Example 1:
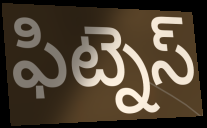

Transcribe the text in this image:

ఫిట్నెస్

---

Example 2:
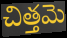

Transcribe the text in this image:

చిత్తమె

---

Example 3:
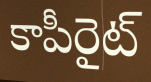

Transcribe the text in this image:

కాపీరైట్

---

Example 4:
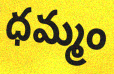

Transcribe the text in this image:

ధమ్మం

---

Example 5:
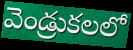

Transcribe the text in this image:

వెండ్రుకలలో